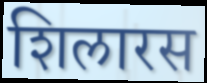
शिलारस